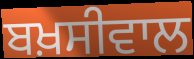
ਬਖ਼ਸੀਵਾਲ